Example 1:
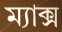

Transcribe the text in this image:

ম্যাক্স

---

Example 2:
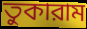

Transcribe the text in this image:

তুকারাম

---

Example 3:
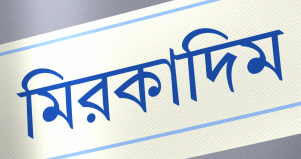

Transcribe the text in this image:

মিরকাদিম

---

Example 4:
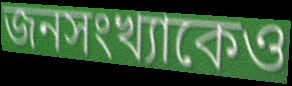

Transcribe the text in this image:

জনসংখ্যাকেও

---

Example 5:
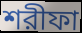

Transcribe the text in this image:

শরীফা